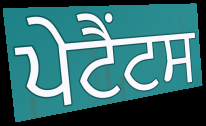
ਪੇਟੈਂਟਸ